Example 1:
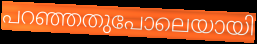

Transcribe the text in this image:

പറഞ്ഞതുപോലെയായി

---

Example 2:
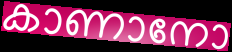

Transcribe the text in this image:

കാണാനോ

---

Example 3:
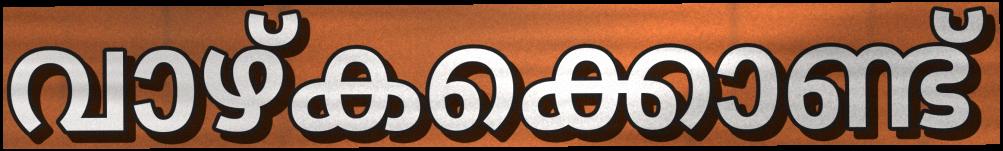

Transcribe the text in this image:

വാഴ്കക്കൊണ്ട്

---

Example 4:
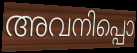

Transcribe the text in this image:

അവനിപ്പൊ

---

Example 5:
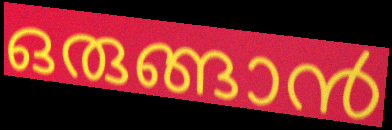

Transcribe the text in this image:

ഒരുങ്ങാൻ